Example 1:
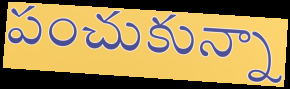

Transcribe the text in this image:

పంచుకున్నా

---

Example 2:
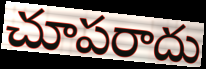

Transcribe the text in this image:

చూపరాదు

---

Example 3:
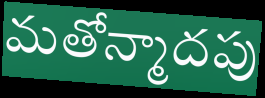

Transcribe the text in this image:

మతోన్మాదపు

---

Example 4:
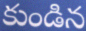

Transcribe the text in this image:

కుండిన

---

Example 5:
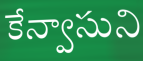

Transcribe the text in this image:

కేన్వాసుని